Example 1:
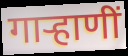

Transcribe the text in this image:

गाऱ्हाणीं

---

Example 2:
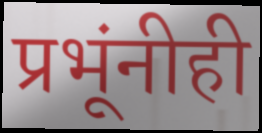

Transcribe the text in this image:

प्रभूंनीही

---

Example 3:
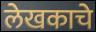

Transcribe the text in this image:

लेखकाचे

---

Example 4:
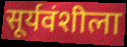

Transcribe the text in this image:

सूर्यवंशीला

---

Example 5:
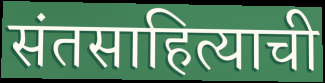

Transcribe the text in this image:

संतसाहित्याची